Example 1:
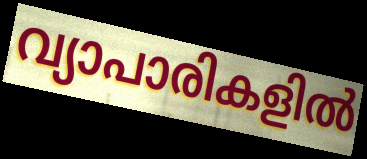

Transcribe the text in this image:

വ്യാപാരികളിൽ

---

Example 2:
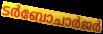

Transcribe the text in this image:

ടർബോചാർജർ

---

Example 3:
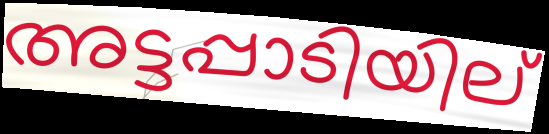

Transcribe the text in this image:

അട്ടപ്പാടിയില്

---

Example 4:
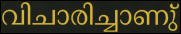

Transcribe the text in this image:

വിചാരിച്ചാണു്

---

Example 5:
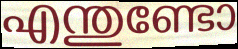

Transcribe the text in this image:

എന്തുണ്ടോ